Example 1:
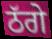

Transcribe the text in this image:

ਠੱਗੇ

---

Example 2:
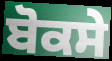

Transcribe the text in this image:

ਬੋਕਸੇ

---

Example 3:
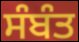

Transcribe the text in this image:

ਸੰਬੰਤ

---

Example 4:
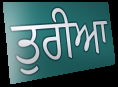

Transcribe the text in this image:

ਤੁਰੀਆ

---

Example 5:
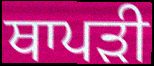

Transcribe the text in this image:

ਥਾਪੜੀ